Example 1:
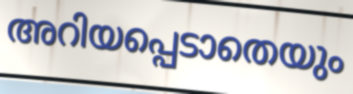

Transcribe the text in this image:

അറിയപ്പെടാതെയും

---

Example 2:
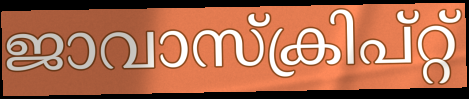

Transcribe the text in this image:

ജാവാസ്ക്രിപ്റ്റ്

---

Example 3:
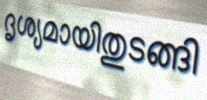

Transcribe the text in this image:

ദൃശ്യമായിതുടങ്ങി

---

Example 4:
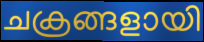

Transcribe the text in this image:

ചക്രങ്ങളായി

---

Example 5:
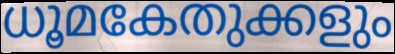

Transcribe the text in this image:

ധൂമകേതുക്കളും